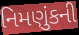
નિમણુંકની